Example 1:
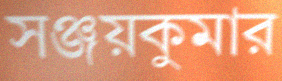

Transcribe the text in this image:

সঞ্জয়কুমার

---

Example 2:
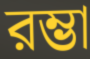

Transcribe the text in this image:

রম্ভা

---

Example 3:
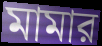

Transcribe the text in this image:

মামার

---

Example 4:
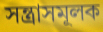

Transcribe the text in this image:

সন্ত্রাসমূলক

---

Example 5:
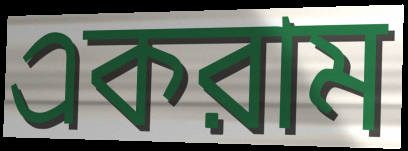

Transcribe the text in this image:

একরাম